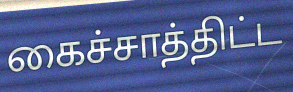
கைச்சாத்திட்ட